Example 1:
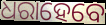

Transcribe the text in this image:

ଧରାହେବେ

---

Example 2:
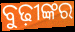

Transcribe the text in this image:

ବୁଢ଼ୀଙ୍କର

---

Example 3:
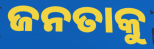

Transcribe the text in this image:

ଜନତାକୁ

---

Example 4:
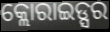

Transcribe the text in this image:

କ୍ଲୋରାଇଡ୍ସର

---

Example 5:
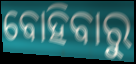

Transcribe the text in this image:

ବୋହିବାରୁ